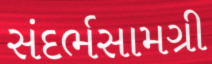
સંદર્ભસામગ્રી